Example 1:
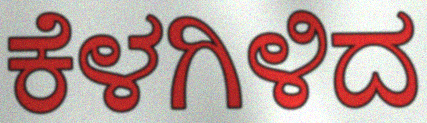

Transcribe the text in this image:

ಕೆಳಗಿಳಿದ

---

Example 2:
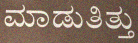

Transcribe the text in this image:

ಮಾಡುತಿತ್ತು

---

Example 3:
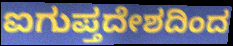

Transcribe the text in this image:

ಐಗುಪ್ತದೇಶದಿಂದ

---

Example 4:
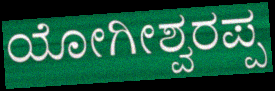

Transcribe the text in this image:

ಯೋಗೀಶ್ವರಪ್ಪ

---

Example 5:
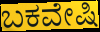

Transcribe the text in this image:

ಬಕವೇಷಿ